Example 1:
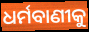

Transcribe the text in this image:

ଧର୍ମବାଣୀକୁ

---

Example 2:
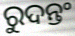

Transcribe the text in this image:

ରୁଦନ୍ତଂ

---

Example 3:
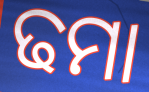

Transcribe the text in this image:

ଢମା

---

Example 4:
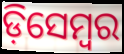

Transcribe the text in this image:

ଡ଼ିସେମ୍ୱର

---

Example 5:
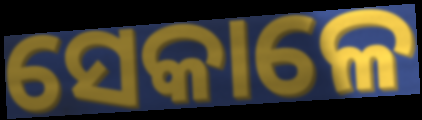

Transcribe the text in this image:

ସେକାଳେ